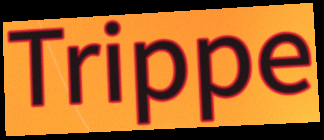
Trippe